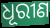
ଧୂରୀଣ